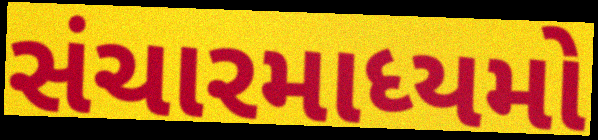
સંચારમાધ્યમો